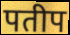
पतीप